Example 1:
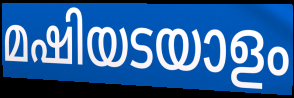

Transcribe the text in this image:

മഷിയടയാളം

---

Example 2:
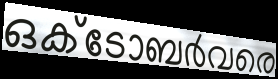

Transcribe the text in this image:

ഒക്ടോബർവരെ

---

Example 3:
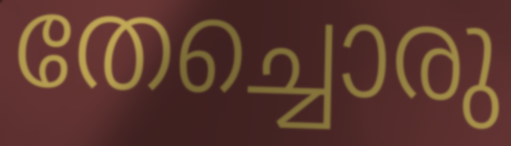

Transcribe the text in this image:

തേച്ചൊരു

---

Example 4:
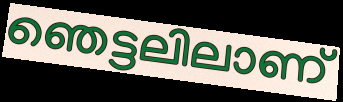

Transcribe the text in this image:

ഞെട്ടലിലാണ്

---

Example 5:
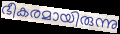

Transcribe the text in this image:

ഭീകരമായിരുന്നു